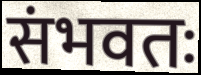
संभवतः